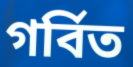
গৰ্বিত